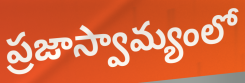
ప్రజాస్వామ్యంలో